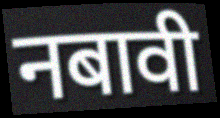
नबावी